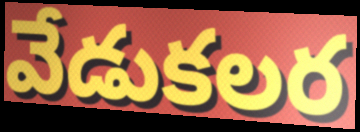
వేడుకలర